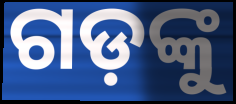
ଗଡ଼ଙ୍କୁ